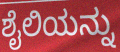
ಶೈಲಿಯನ್ನು